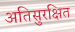
अतिसुरक्षित